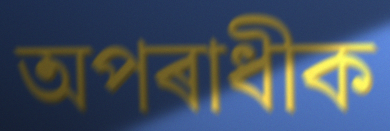
অপৰাধীক